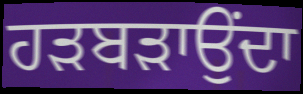
ਹੜਬੜਾਉਂਦਾ